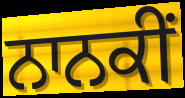
ਨਾਨਕੀਂ